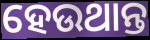
ହେଉଥାନ୍ତ